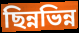
ছিন্নভিন্ন